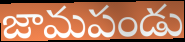
జామపండు